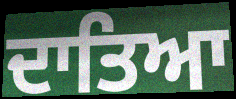
ਦਾਤਿਆ